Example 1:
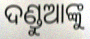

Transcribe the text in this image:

ଦଣ୍ଡୁଆଙ୍କୁ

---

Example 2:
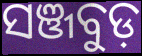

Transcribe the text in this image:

ସଞ୍ଜବୁଡ଼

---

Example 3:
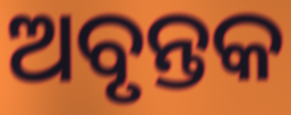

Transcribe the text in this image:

ଅବୃନ୍ତକ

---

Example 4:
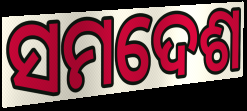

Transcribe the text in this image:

ସମଦେଶ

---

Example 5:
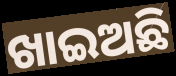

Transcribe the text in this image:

ଖାଇଅଛି